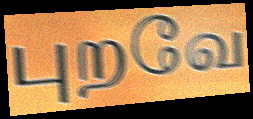
புறவே